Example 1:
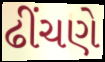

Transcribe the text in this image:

ઢીંચણે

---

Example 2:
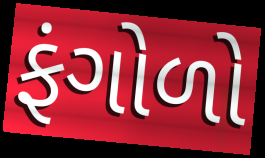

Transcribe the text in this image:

ફંગોળો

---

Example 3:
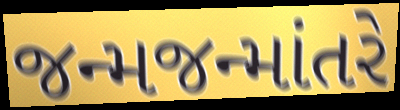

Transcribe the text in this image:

જન્મજન્માંતરે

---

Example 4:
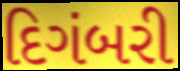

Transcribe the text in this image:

દિગંબરી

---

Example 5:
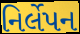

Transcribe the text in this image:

નિર્લેપન